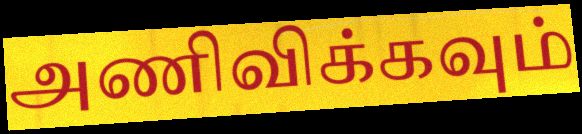
அணிவிக்கவும்